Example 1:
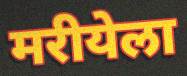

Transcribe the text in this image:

मरीयेला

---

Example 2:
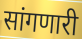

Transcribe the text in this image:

सांगणारी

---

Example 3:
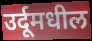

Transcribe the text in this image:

उर्दूमधील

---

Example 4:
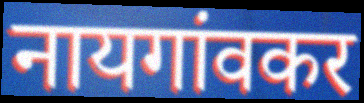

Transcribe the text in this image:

नायगांवकर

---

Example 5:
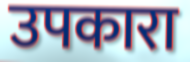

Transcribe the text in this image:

उपकारा